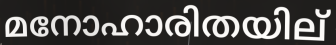
മനോഹാരിതയില്